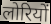
लोरियों